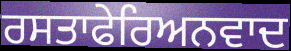
ਰਸਤਾਫੇਰਿਅਨਵਾਦ